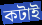
কটাই